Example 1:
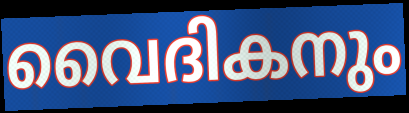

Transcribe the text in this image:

വൈദികനും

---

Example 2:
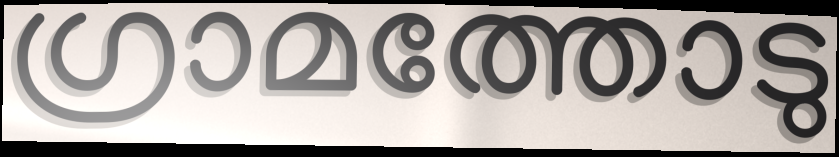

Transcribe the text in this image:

ഗ്രാമത്തോടു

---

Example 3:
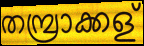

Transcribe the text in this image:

തമ്പ്രാക്കള്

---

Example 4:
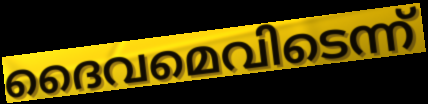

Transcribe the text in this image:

ദൈവമെവിടെന്ന്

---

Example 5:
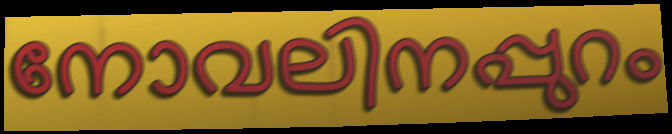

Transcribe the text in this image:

നോവലിനപ്പുറം